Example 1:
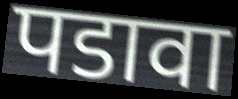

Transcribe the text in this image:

पडावा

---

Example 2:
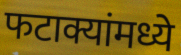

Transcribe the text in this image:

फटाक्यांमध्ये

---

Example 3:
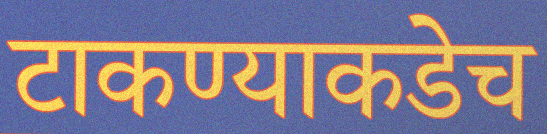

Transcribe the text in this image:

टाकण्याकडेच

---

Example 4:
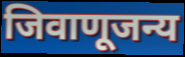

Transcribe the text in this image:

जिवाणूजन्य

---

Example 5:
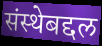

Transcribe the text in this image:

संस्थेबद्दल